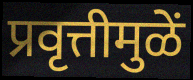
प्रवृत्तीमुळें